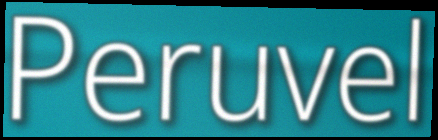
Peruvel